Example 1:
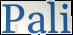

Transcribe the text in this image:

Pali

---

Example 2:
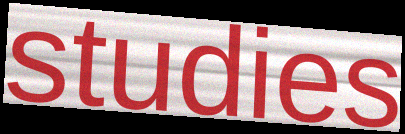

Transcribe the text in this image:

studies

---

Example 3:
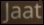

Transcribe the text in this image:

Jaat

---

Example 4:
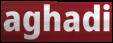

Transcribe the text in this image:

aghadi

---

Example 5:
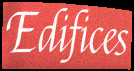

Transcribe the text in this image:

Edifices